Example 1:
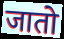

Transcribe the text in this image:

जातो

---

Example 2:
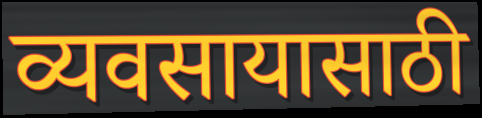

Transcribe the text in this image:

व्यवसायासाठी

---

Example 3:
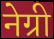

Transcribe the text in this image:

नेग्री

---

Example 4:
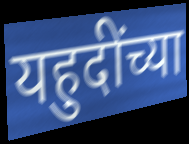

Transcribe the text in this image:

यहुदींच्या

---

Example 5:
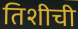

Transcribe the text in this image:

तिशीची